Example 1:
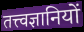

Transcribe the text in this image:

तत्त्वज्ञानियों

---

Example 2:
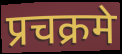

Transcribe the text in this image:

प्रचक्रमे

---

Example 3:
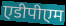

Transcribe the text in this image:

एडीपीएम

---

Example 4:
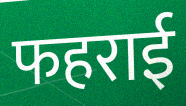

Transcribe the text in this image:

फहराई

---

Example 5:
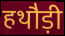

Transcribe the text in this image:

हथौड़ी